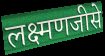
लक्ष्मणजीसे